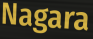
Nagara